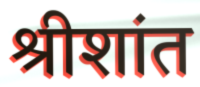
श्रीशांत